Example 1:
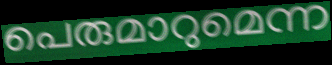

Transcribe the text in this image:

പെരുമാറുമെന്ന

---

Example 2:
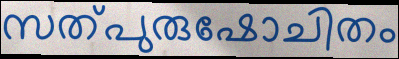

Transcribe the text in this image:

സത്പുരുഷോചിതം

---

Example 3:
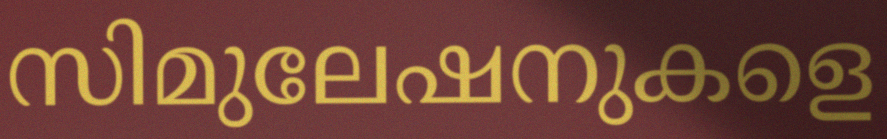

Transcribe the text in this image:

സിമുലേഷനുകളെ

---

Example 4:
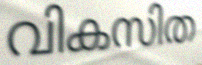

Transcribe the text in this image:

വികസിത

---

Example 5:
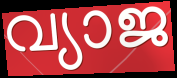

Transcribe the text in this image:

വ്യാജ